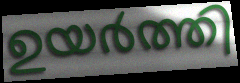
ഉയർത്തി